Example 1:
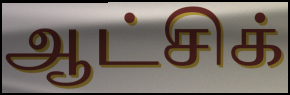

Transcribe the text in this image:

ஆட்சிக்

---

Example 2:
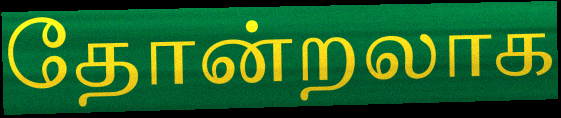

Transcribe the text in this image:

தோன்றலாக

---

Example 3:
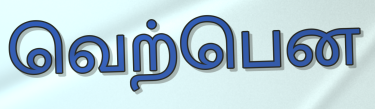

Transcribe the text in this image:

வெற்பென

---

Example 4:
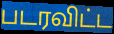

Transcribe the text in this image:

படரவிட்ட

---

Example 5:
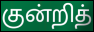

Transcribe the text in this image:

குன்றித்